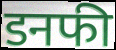
डनफी